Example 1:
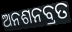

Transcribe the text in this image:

ଅନଶନବ୍ରତ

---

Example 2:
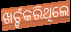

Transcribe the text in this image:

ଖର୍ଚ୍ଚକରିଥିଲେ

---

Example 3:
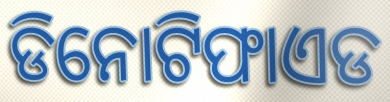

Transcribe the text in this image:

ଡିନୋଟିଫାଏଡ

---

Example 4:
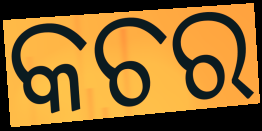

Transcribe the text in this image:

କଚର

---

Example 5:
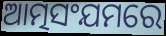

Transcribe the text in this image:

ଆତ୍ମସଂଯମରେ